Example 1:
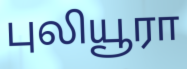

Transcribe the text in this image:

புலியூரா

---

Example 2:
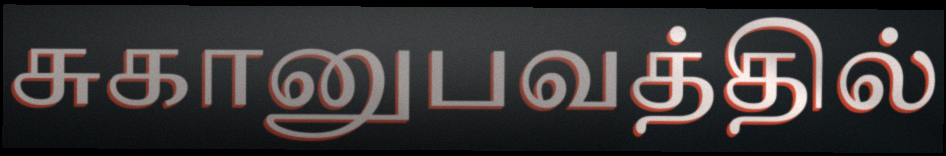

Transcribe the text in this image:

சுகானுபவத்தில்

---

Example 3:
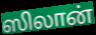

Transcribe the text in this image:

ஸிலான்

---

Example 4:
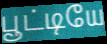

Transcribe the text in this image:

பூட்டியே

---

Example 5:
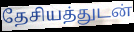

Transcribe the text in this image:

தேசியத்துடன்